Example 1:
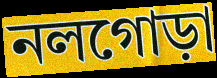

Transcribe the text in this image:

নলগোড়া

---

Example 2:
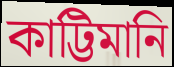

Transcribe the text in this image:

কাট্টিমানি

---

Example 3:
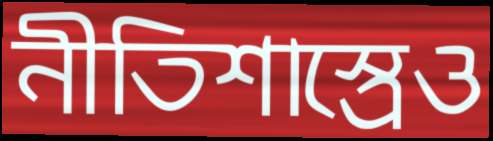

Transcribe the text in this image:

নীতিশাস্ত্রেও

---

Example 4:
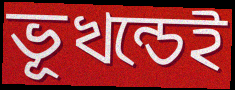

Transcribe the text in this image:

ভূখন্ডেই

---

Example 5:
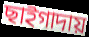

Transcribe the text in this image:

ছাইগাদায়